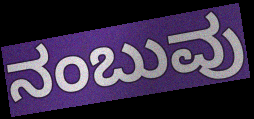
ನಂಬುವು